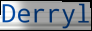
Derryl